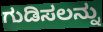
ಗುಡಿಸಲನ್ನು